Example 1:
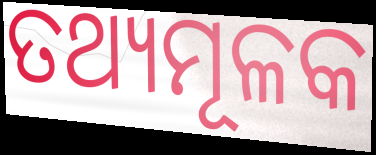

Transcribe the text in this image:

ତଥ୍ୟମୂଳକ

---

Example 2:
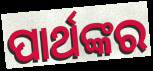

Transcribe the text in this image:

ପାର୍ଥଙ୍କର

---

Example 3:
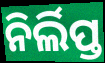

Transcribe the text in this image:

ନିର୍ଲିପ୍ତ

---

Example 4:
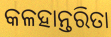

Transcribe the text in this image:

କଳହାନ୍ତରିତା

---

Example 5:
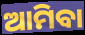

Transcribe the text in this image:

ଆମିବା